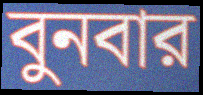
বুনবার